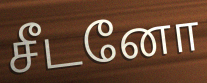
சீடனோ